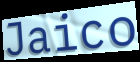
Jaico